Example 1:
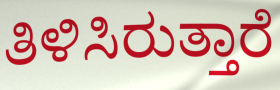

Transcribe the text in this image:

ತಿಳಿಸಿರುತ್ತಾರೆ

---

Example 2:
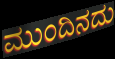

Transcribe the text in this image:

ಮುಂದಿನದು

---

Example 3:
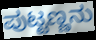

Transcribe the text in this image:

ಪುಟ್ಟಣ್ಣನು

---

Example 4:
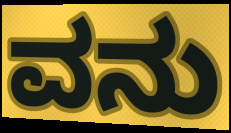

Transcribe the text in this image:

ವನು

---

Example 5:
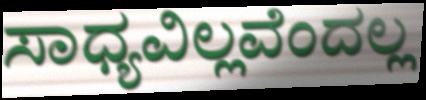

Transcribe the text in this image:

ಸಾಧ್ಯವಿಲ್ಲವೆಂದಲ್ಲ